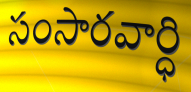
సంసారవార్ధి